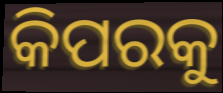
କିପରକୁ